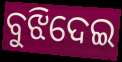
ବୁଝିଦେଇ